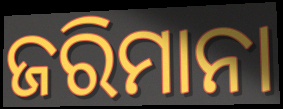
ଜରିମାନା